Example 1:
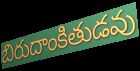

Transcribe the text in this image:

బిరుదాంకితుడవు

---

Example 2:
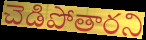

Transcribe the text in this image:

చెడిపోతారని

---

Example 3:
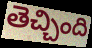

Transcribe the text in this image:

తెచ్చింది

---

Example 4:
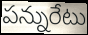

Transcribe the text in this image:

పన్నురేటు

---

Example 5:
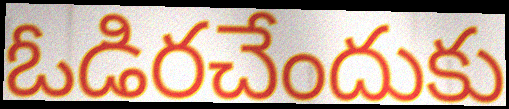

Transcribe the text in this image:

ఓడిరచేందుకు